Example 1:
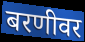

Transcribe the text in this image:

बरणीवर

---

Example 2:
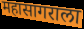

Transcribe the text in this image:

महासागराला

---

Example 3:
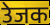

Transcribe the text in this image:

उेजक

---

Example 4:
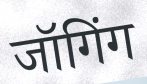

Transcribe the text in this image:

जॉगिंग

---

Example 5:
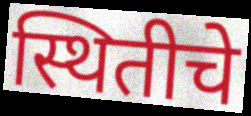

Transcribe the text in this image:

स्थितीचे